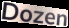
Dozen